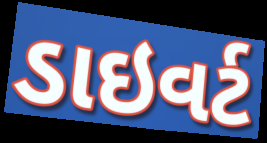
ડાઇવર્ટ